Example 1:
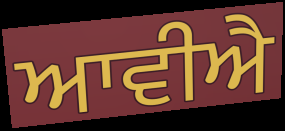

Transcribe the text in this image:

ਆਵੀਐ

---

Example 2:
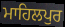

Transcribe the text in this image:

ਮਾਹਿਲਪੁਰ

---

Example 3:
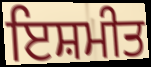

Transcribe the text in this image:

ਇਸ਼ਮੀਤ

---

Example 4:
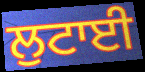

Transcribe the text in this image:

ਲੁਟਾਈ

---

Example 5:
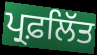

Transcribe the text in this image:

ਪ੍ਰਫ਼ਲਿੱਤ